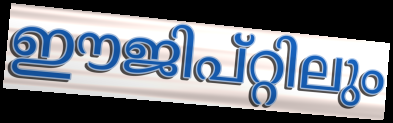
ഈജിപ്റ്റിലും